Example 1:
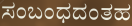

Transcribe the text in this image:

ಸಂಬಂಧದಂತಹ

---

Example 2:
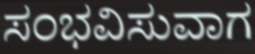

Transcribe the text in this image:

ಸಂಭವಿಸುವಾಗ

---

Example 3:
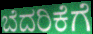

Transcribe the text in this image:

ಬೆದರಿಕೆಗೆ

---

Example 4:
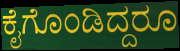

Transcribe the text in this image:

ಕೈಗೊಂಡಿದ್ದರೂ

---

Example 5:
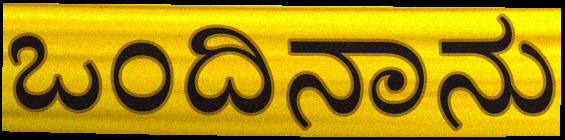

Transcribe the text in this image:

ಒಂದಿನಾನು